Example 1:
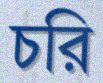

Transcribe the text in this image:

চরি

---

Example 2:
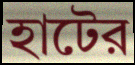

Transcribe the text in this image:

হাটের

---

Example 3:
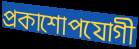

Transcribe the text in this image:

প্রকাশোপযোগী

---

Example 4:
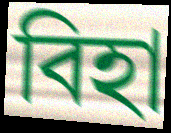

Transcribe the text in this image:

বিহা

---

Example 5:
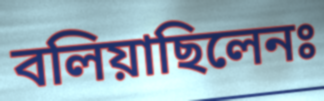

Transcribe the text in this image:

বলিয়াছিলেনঃ